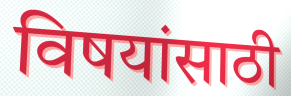
विषयांसाठी